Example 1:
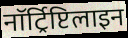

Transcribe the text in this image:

नॉर्ट्रिप्टिलाइन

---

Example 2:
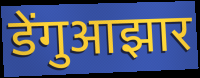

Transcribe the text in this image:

डेंगुआझार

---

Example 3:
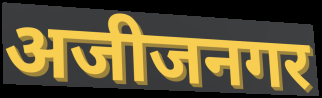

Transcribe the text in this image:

अजीजनगर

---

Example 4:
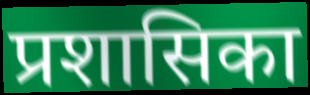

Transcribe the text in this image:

प्रशासिका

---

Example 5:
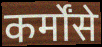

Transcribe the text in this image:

कर्मोंसे